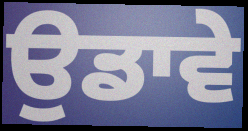
ਉਡਾਵੇ